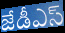
జేడీఎస్